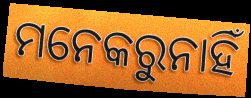
ମନେକରୁନାହିଁ